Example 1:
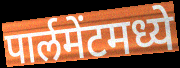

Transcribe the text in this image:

पार्लमेंटमध्ये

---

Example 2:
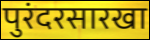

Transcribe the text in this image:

पुरंदरसारखा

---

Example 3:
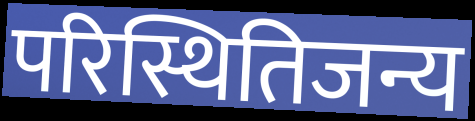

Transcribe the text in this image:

परिस्थितिजन्य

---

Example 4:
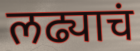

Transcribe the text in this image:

लढ्याचं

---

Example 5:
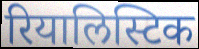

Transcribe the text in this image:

रियालिस्टिक